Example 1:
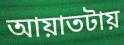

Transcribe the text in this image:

আয়াতটায়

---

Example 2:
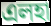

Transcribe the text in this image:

এলহা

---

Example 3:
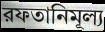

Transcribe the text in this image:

রফতানিমূল্য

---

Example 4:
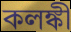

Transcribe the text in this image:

কলঙ্কী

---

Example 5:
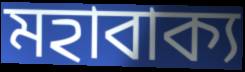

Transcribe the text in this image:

মহাবাক্য